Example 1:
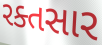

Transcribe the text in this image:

રક્તસાર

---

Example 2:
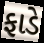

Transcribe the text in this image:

ફાડે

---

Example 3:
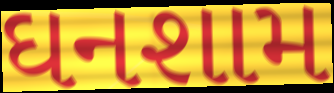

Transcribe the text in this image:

ઘનશામ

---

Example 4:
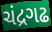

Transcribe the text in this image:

ચંદ્રગઢ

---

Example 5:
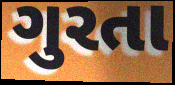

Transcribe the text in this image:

ગુરતા